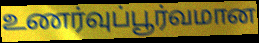
உணர்வுப்பூர்வமான